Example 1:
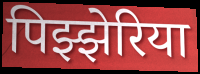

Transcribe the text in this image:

पिझ्झेरिया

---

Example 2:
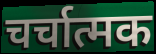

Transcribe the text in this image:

चर्चात्मक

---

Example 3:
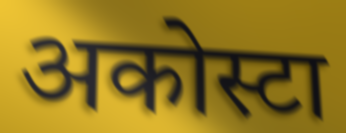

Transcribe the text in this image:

अकोस्टा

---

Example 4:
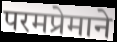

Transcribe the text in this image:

परमप्रेमाने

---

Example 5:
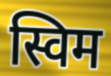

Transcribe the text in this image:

स्विम